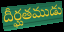
దీర్ఘతముడు